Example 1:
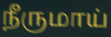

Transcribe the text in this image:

நீருமாய்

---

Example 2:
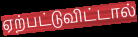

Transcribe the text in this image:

ஏற்பட்டுவிட்டால்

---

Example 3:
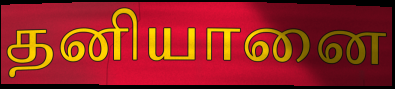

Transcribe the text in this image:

தனியானை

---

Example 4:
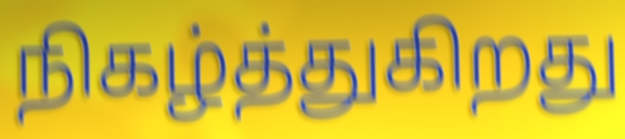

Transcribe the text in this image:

நிகழ்த்துகிறது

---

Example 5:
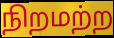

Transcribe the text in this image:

நிறமற்ற